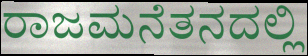
ರಾಜಮನೆತನದಲ್ಲಿ